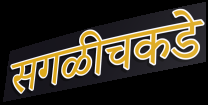
सगळीचकडे